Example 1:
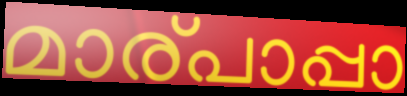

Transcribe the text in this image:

മാര്പാപ്പാ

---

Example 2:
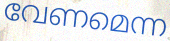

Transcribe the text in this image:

വേണമെന്ന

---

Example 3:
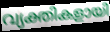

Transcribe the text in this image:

വ്യക്തികളായി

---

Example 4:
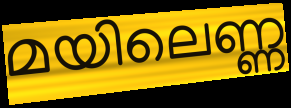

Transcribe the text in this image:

മയിലെണ്ണ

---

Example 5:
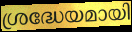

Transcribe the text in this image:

ശ്രദ്ധേയമായി